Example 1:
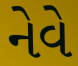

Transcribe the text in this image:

નેવે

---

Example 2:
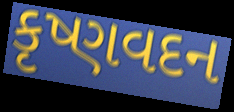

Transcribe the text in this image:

કૃષ્ણવદન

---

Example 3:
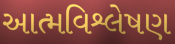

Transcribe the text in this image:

આત્મવિશ્લેષણ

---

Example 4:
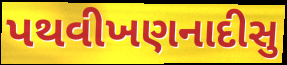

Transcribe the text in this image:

પથવીખણનાદીસુ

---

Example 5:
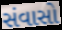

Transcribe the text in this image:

સંવાસો